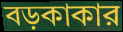
বড়কাকার